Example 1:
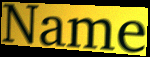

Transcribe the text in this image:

Name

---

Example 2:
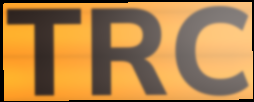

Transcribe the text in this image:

TRC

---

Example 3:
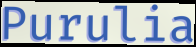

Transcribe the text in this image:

Purulia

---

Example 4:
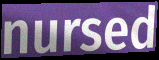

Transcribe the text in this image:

nursed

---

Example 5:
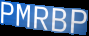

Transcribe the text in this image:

PMRBP